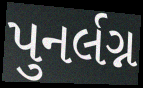
પુનર્લગ્ન